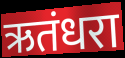
ऋतंधरा